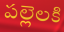
పల్లెలకి